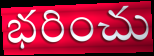
భరించు